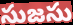
సుజసు